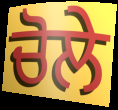
ਚੋਲੇ